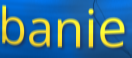
banie